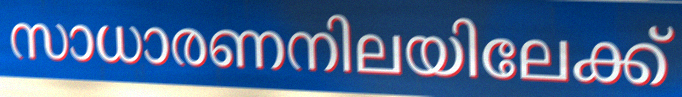
സാധാരണനിലയിലേക്ക്